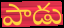
పాడు